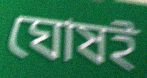
ঘোষই